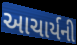
આચાર્યની